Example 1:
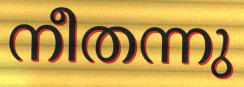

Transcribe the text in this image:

നീതന്നു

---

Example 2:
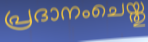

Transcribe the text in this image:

പ്രദാനംചെയ്തു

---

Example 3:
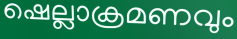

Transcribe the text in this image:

ഷെല്ലാക്രമണവും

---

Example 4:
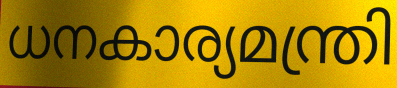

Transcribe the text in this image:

ധനകാര്യമന്ത്രി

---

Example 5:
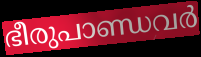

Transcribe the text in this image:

ഭീരുപാണ്ഡവർ